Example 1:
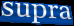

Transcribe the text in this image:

supra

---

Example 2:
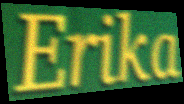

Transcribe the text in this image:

Erika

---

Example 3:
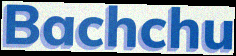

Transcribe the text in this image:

Bachchu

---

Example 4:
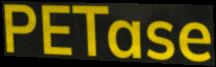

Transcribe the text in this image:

PETase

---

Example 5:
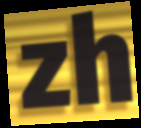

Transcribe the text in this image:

zh